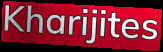
Kharijites